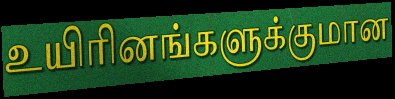
உயிரினங்களுக்குமான